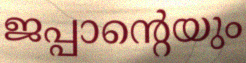
ജപ്പാന്റെയും